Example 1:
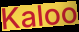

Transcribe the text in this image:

Kaloo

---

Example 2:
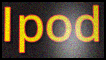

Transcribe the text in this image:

Ipod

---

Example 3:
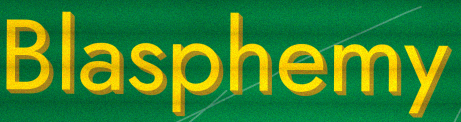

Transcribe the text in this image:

Blasphemy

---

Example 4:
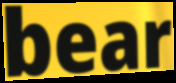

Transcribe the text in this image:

bear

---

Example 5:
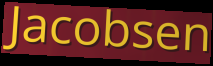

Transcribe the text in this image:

Jacobsen